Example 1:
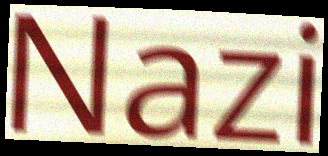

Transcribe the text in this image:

Nazi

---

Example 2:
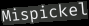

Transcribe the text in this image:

Mispickel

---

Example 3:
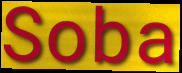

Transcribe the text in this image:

Soba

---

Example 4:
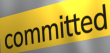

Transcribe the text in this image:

committed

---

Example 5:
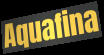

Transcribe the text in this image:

Aquafina